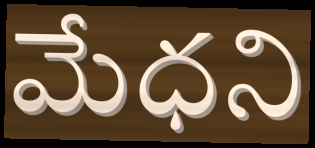
మేధని